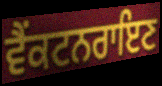
ਵੈਂਕਟਨਰਾਇਣ